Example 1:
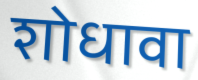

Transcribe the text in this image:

शोधावा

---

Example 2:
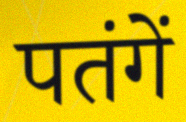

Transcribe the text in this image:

पतंगें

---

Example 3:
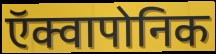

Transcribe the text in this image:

ऍक्वापोनिक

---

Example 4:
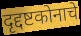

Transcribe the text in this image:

दृद्दष्टकोनाचे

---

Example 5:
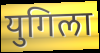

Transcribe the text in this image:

युगिला